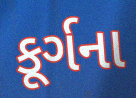
કૂર્ગના